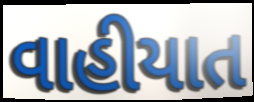
વાહીયાત